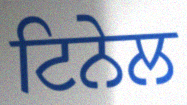
ਟਿਨੇਲ